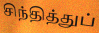
சிந்தித்துப்